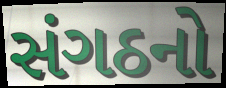
સંગઠનો